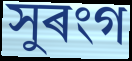
সুৰংগ